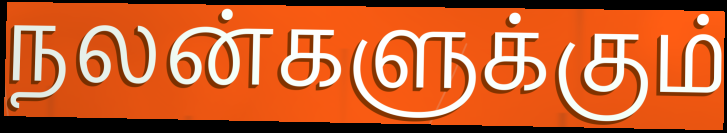
நலன்களுக்கும்